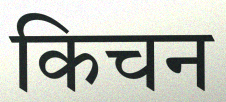
किचन